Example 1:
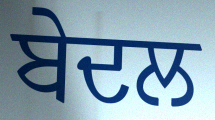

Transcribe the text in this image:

ਬੇਦਲ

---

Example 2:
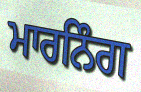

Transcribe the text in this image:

ਮਾਰਨਿੰਗ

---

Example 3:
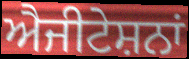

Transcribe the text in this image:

ਐਜੀਟੇਸ਼ਨਾਂ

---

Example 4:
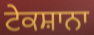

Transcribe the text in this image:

ਟੇਕਸ਼ਾਨਾ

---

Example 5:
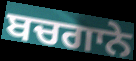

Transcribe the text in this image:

ਬਚਗਾਨੇ